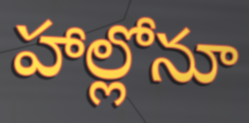
హాల్లోనూ